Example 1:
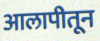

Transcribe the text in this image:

आलापीतून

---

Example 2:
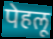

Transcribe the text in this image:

पेहलू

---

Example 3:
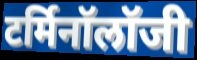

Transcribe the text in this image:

टर्मिनॉलॉजी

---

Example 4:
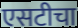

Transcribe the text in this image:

एसटीचा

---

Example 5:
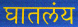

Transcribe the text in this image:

घातलंय